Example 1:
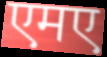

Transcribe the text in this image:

एमए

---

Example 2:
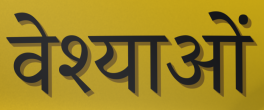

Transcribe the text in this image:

वेश्याओं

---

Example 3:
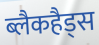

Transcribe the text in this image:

ब्लैकहैड्स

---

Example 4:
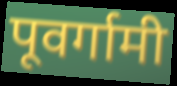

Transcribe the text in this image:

पूवर्गामी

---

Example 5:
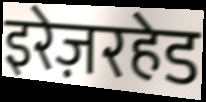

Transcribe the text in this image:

इरेज़रहेड